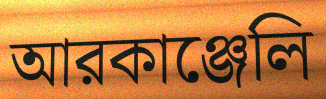
আরকাঞ্জেলি